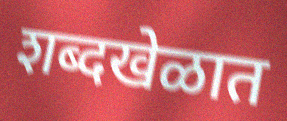
शब्दखेळात